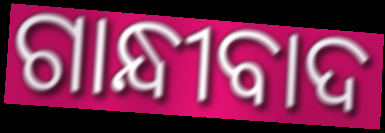
ଗାନ୍ଧୀବାଦ